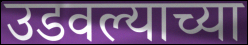
उडवल्याच्या